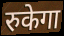
रुकेगा